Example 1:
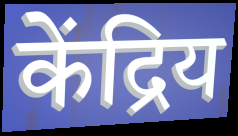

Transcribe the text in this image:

केंद्रिय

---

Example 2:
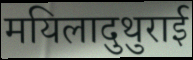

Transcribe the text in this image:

मयिलादुथुराई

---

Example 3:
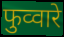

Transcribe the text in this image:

फुव्वारे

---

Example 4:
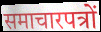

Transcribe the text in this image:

समाचारपत्रों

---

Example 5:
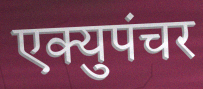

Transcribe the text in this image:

एक्युपंचर